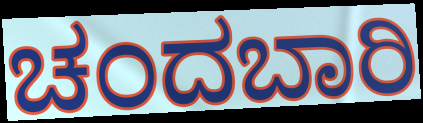
ಚಂದಬಾರಿ